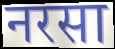
नरसा